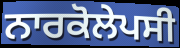
ਨਾਰਕੋਲੇਪਸੀ